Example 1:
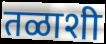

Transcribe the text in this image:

तळाशी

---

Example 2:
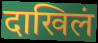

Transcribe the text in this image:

दाखिलं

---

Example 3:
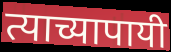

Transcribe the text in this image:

त्याच्यापायी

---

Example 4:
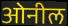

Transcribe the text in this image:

ओनील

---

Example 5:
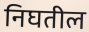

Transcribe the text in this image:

निघतील